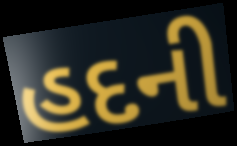
હદની